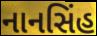
નાનસિંહ